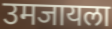
उमजायला